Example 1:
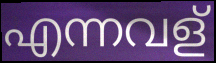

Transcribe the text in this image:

എന്നവള്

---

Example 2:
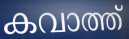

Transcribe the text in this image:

കവാത്ത്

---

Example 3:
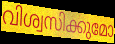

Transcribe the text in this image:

വിശ്വസിക്കുമോ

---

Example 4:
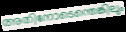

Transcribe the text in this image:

അതിനോടെന്തെങ്കിലും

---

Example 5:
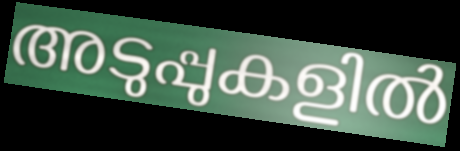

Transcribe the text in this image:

അടുപ്പുകളിൽ